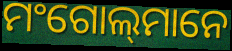
ମଂଗୋଲ୍‍ମାନେ